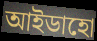
আইডাহো